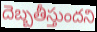
దెబ్బతీస్తుందని